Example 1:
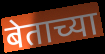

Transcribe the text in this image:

बेताच्या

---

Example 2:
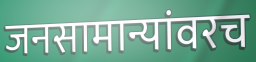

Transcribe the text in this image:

जनसामान्यांवरच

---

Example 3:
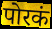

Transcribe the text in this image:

पोरकं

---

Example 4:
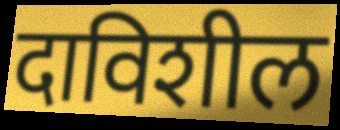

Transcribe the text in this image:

दाविशील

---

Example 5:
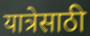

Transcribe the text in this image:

यात्रेसाठी